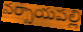
నర్సాయపల్లి